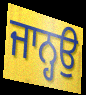
ਜਾਨ੍ਹਉ